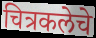
चित्रकलेचे